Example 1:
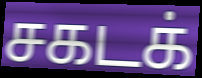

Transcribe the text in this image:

சகடக்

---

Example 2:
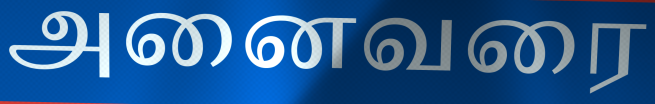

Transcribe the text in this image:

அனைவரை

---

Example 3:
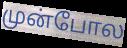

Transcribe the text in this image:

முன்போல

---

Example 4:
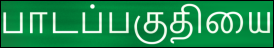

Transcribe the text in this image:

பாடப்பகுதியை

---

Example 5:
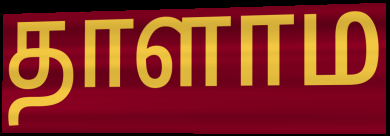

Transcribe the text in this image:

தாளாம